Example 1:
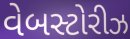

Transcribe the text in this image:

વેબસ્ટોરીઝ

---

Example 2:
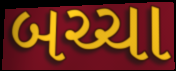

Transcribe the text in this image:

બચ્ચા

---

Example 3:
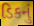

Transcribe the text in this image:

ડિકનું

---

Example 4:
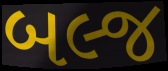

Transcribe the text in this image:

બલ્જ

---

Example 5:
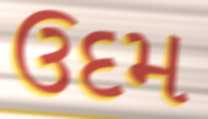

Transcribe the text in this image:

ઉદમ